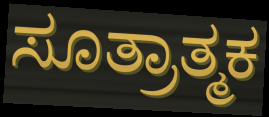
ಸೂತ್ರಾತ್ಮಕ